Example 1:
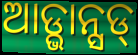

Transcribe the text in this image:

ଆଡ୍ଭାନ୍ସଡ୍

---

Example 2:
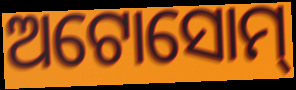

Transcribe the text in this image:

ଅଟୋସୋମ୍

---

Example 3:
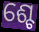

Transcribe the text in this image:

ଶ୍ଚେ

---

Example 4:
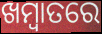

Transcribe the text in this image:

ଖମ୍ବାତରେ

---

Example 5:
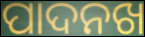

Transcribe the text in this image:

ପାଦନଖ